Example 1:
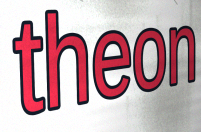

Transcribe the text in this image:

theon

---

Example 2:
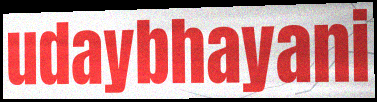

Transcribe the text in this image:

udaybhayani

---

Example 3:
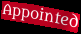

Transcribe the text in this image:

Appointed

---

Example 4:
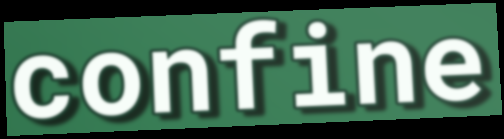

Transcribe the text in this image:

confine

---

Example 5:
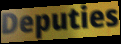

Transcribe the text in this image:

Deputies